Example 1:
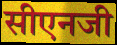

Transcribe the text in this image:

सीएनजी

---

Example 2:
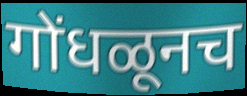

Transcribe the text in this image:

गोंधळूनच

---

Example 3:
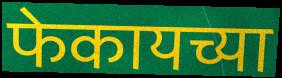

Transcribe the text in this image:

फेकायच्या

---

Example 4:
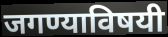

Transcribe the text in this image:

जगण्याविषयी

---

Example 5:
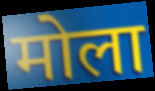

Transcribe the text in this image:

मोला